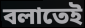
বলাতেই